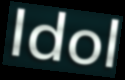
Idol